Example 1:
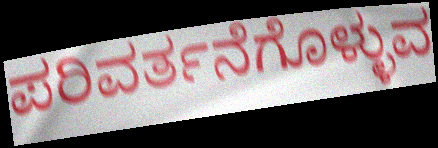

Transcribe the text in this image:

ಪರಿವರ್ತನೆಗೊಳ್ಳುವ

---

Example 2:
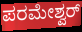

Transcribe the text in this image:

ಪರಮೇಶ್ವರ್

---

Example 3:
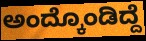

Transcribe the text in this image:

ಅಂದ್ಕೊಂಡಿದ್ದೆ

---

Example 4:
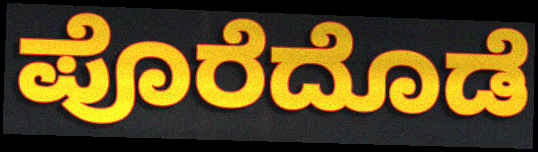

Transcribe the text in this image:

ಪೊರೆದೊಡೆ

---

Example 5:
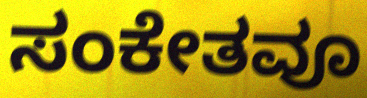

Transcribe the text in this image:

ಸಂಕೇತವೂ